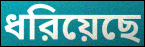
ধরিয়েছে